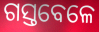
ଗସ୍ତବେଳେ